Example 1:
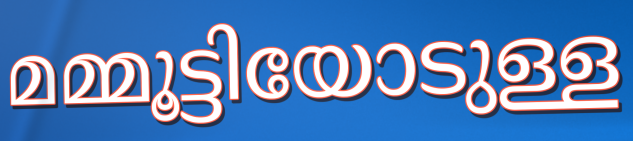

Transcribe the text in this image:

മമ്മൂട്ടിയോടുള്ള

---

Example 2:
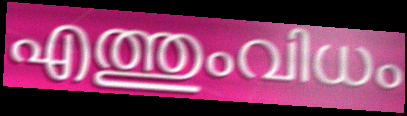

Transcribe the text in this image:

എത്തുംവിധം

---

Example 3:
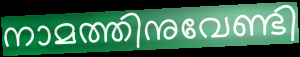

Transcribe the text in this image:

നാമത്തിനുവേണ്ടി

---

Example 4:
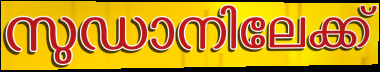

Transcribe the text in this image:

സുഡാനിലേക്ക്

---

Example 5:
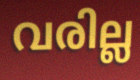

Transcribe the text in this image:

വരില്ല